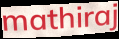
mathiraj